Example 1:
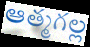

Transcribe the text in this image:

ఆత్మగల్ల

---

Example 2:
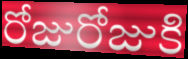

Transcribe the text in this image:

రోజురోజుకి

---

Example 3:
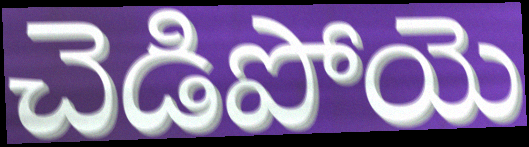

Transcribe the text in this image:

చెడిపోయె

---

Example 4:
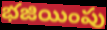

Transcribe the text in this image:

భజియింపు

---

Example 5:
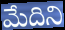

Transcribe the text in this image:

మేదిని